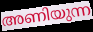
അണിയുന്ന